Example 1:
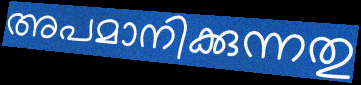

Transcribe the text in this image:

അപമാനിക്കുന്നതു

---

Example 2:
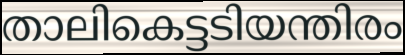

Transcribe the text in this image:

താലികെട്ടടിയന്തിരം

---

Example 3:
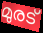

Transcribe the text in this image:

മുരട്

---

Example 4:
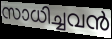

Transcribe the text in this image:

സാധിച്ചവൻ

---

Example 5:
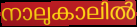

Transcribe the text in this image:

നാലുകാലിൽ